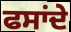
ਫਸਾਂਦੇ